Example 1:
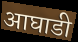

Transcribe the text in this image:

आघाडी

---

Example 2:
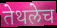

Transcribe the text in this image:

तेथलेच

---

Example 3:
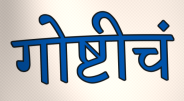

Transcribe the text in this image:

गोष्टीचं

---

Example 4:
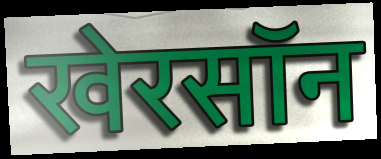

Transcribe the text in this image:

खेरसॉन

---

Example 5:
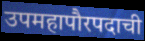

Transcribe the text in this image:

उपमहापौरपदाची